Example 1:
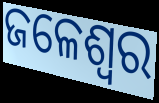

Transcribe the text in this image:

ଜଳେଶ୍ବର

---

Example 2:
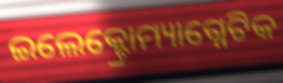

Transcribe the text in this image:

ଇଲେକ୍ଟ୍ରୋମ୍ୟାଗ୍ନେଟିକ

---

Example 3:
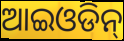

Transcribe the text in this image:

ଆଇଓଡିନ୍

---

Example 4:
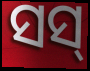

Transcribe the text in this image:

ସସ୍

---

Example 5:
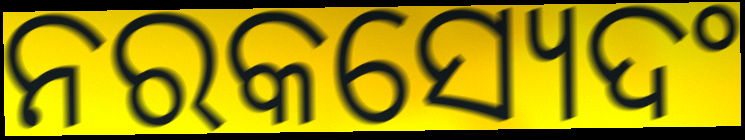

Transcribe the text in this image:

ନରକସ୍ୟେଦଂ